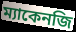
ম্যাকেনজি